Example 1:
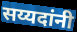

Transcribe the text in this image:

सय्यदांनी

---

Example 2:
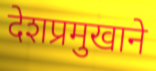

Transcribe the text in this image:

देशप्रमुखाने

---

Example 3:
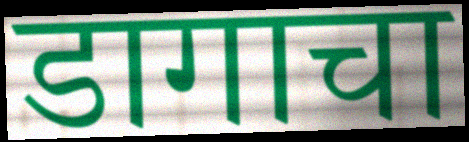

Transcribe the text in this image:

डागाचा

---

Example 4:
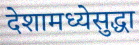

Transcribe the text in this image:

देशामध्येसुद्धा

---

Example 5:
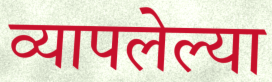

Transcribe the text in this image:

व्यापलेल्या